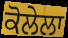
ਕੋਲੇਲਾ